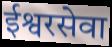
ईश्वरसेवा